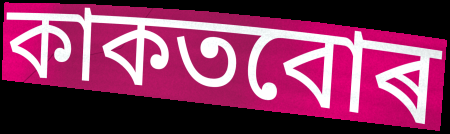
কাকতবোৰ